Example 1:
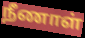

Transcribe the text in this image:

நீணாள்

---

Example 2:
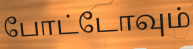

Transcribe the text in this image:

போட்டோவும்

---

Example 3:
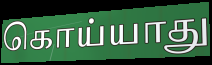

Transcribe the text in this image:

கொய்யாது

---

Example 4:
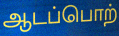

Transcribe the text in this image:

ஆடப்பொற்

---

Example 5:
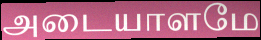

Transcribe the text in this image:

அடையாளமே